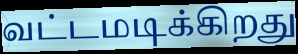
வட்டமடிக்கிறது